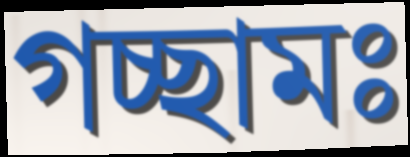
গচ্ছামঃ